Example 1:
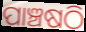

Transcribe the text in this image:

ପାଞ୍ଚଷଠି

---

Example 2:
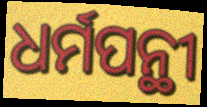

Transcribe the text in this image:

ଧର୍ମପନ୍ଥୀ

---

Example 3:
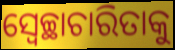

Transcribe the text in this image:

ସ୍ଵେଚ୍ଛାଚାରିତାକୁ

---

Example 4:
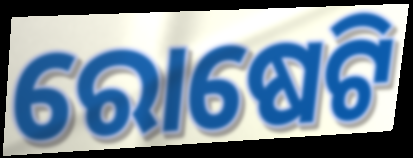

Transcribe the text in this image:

ରୋଷେଟି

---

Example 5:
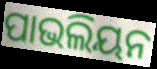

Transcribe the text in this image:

ପାଭଲିୟନ